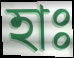
হাঃ